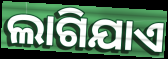
ଲାଗିଯାଏ